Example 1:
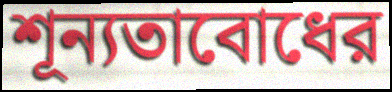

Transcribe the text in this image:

শূন্যতাবোধের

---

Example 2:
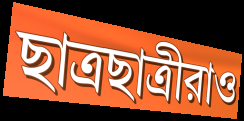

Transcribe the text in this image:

ছাত্রছাত্রীরাও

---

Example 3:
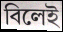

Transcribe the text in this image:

বিলেই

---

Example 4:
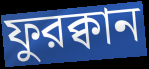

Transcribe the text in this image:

ফুরক্বান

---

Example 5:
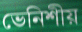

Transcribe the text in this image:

ভেনিশীয়